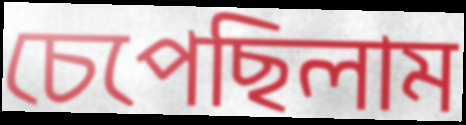
চেপেছিলাম